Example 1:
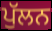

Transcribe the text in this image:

ਪੁੱਲਨ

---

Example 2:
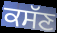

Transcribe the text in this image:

ਕਸੱਣ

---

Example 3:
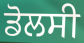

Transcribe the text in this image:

ਡੋਲਸੀ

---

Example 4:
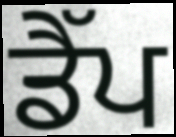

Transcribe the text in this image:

ਡੈੱਪ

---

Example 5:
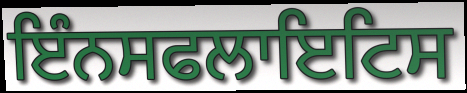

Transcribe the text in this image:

ਇੰਨਸਫਲਾਇਟਿਸ